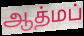
ஆத்மப்